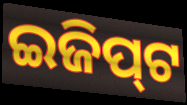
ଇଜିପ୍‍ଟ